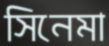
সিনেমা